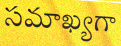
సమాఖ్యగా